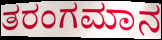
ತರಂಗಮಾನ